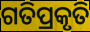
ଗତିପ୍ରକୃତି